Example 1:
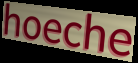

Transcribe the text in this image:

hoeche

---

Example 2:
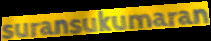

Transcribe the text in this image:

suransukumaran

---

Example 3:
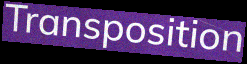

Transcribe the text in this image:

Transposition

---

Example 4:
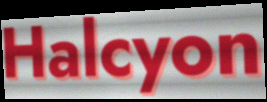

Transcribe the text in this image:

Halcyon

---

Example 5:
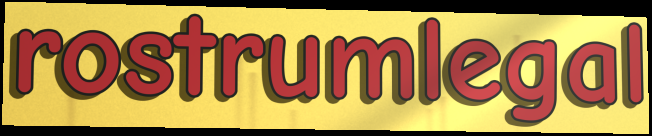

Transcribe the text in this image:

rostrumlegal